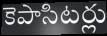
కెపాసిటర్లు